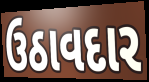
ઉઠાવદાર